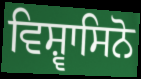
ਵਿਸ਼੍ਵਾਸਿਨੋ